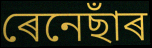
ৰেনেছাঁৰ